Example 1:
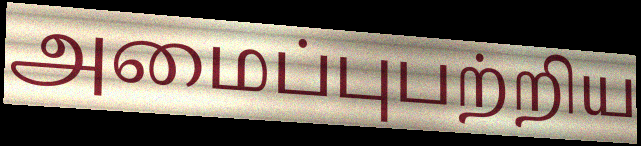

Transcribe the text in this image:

அமைப்புபற்றிய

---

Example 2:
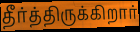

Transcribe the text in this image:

தீர்த்திருக்கிறார்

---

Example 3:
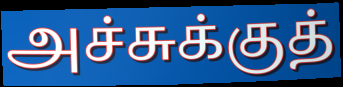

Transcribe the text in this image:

அச்சுக்குத்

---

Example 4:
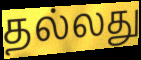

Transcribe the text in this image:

தல்லது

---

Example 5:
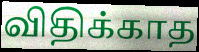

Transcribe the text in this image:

விதிக்காத